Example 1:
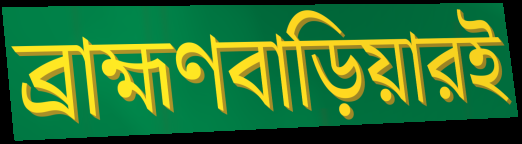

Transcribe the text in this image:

ব্রাহ্মণবাড়িয়ারই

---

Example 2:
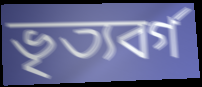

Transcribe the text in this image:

ভৃত্যবর্গ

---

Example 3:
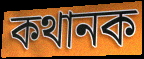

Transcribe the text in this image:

কথানক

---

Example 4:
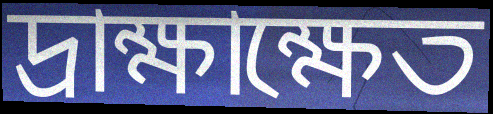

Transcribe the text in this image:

দ্রাক্ষাক্ষেত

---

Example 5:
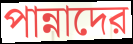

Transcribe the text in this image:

পান্নাদের